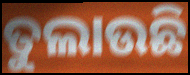
ତୁଲାଉଛି